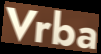
Vrba